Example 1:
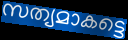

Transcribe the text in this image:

സത്യമാകട്ടെ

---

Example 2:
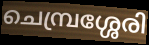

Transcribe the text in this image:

ചെമ്പ്രശ്ശേരി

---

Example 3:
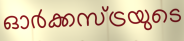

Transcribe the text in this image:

ഓർക്കസ്ട്രയുടെ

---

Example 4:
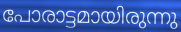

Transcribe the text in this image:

പോരാട്ടമായിരുന്നു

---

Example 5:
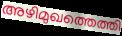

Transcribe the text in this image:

അഴിമുഖത്തെത്തി